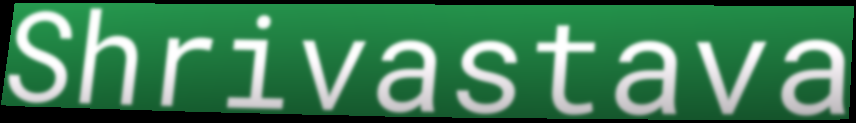
Shrivastava